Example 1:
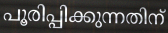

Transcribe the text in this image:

പൂരിപ്പിക്കുന്നതിന്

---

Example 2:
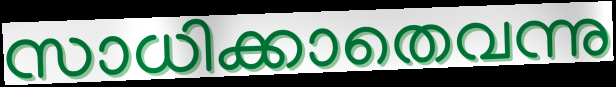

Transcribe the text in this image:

സാധിക്കാതെവന്നു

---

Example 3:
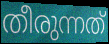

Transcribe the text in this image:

തീരുന്നത്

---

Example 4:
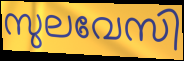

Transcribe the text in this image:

സുലവേസി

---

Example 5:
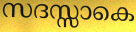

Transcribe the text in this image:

സദസ്സാകെ